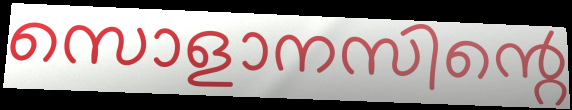
സൊളാനസിന്റെ